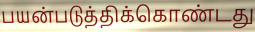
பயன்படுத்திக்கொண்டது